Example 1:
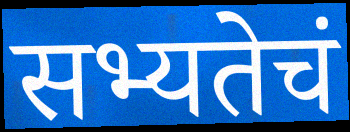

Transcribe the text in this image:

सभ्यतेचं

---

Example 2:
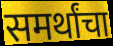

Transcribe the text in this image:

समर्थांचा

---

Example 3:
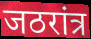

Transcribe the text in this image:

जठरांत्र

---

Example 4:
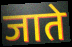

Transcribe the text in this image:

जाते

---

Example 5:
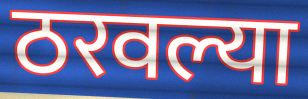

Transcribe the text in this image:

ठरवल्या